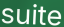
suite